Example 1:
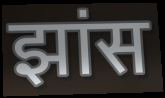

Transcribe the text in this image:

झांस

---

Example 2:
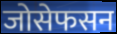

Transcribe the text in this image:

जोसेफसन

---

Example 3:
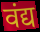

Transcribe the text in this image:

वंद्य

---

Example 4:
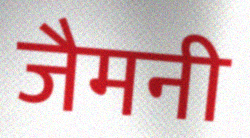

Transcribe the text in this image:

जैमनी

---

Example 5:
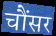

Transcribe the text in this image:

चौंसर